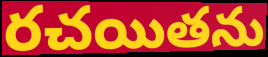
రచయితను